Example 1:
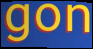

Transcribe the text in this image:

gon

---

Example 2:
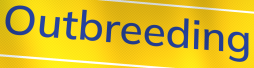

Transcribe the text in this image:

Outbreeding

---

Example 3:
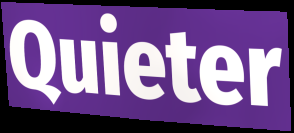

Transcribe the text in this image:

Quieter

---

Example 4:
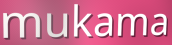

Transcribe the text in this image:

mukama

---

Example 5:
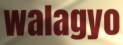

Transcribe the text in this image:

walagyo